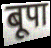
बूपा